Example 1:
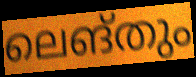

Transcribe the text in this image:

ലെങ്തും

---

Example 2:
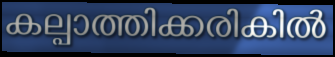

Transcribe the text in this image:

കല്പാത്തിക്കരികിൽ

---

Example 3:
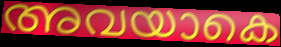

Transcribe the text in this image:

അവയാകെ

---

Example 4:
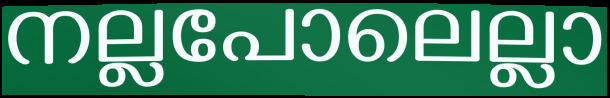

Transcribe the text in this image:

നല്ലപോലെല്ലാ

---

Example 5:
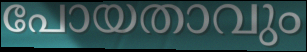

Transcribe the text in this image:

പോയതാവും